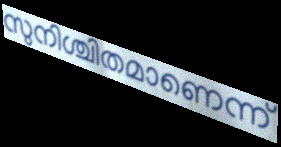
സുനിശ്ചിതമാണെന്ന്